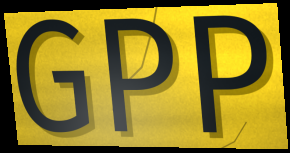
GPP